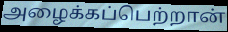
அழைக்கப்பெற்றான்